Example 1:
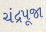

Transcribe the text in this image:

ચંદ્રપૂજા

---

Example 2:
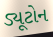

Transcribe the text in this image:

ડ્યૂટોન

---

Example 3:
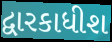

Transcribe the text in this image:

દ્વારકાધીશ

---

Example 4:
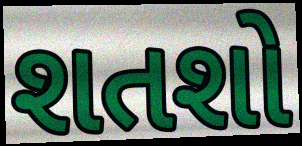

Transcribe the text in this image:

શતશો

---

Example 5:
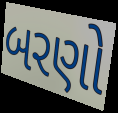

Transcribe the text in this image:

બરણો